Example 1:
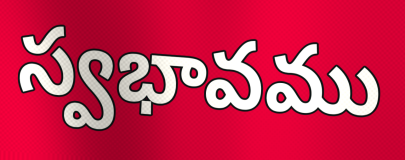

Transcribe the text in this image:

స్వభావము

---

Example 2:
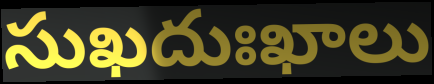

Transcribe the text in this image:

సుఖదుఃఖాలు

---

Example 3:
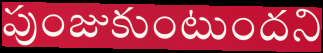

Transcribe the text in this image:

పుంజుకుంటుందని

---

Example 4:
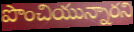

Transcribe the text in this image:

పొంచియున్నారని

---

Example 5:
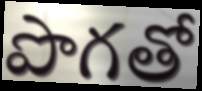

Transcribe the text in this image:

పొగతో